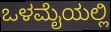
ಒಳಮೈಯಲ್ಲಿ